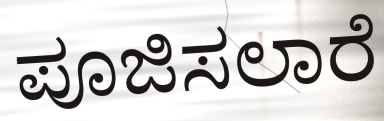
ಪೂಜಿಸಲಾರೆ